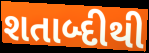
શતાબ્દીથી